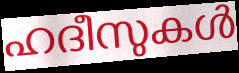
ഹദീസുകൾ